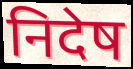
निदेष